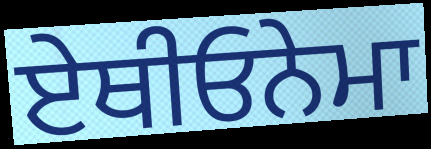
ਏਥੀਓਨੇਮਾ